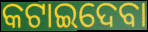
କଟାଇଦେବା